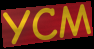
YCM